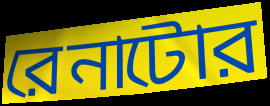
রেনাটোর